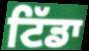
ਟਿੱਡਾ